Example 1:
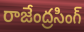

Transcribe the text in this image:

రాజేంద్రసింగ్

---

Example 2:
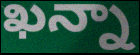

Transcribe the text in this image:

ఖన్నా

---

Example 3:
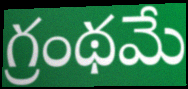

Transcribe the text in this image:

గ్రంథమే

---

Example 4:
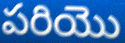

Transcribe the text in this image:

పరియొ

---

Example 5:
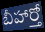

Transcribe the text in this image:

బీహార్తో